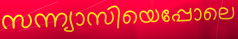
സന്ന്യാസിയെപ്പോലെ